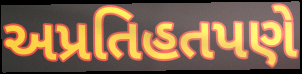
અપ્રતિહતપણે